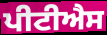
ਪੀਟੀਐਸ